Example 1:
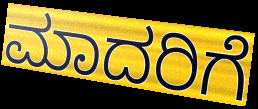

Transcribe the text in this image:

ಮಾದರಿಗೆ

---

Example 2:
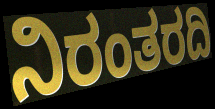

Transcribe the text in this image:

ನಿರಂತರದಿ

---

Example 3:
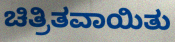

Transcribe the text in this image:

ಚಿತ್ರಿತವಾಯಿತು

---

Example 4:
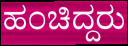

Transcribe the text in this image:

ಹಂಚಿದ್ದರು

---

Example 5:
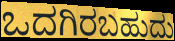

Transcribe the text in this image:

ಒದಗಿರಬಹುದು